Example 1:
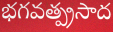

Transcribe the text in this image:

భగవత్ప్రసాద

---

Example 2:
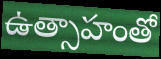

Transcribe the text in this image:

ఉత్సాహంతో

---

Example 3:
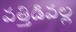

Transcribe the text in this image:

వత్తిడివల్ల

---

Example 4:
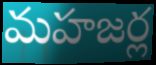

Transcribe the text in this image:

మహజర్ల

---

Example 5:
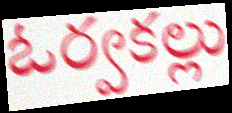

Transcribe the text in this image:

ఓర్వకల్లు